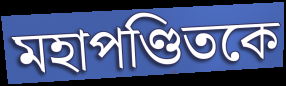
মহাপণ্ডিতকে